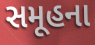
સમૂહના